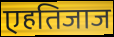
एहतिजाज